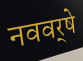
नववर्षे